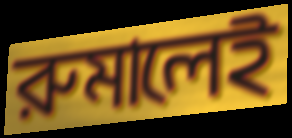
রুমালেই